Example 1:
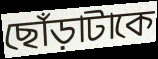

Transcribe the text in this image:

ছোঁড়াটাকে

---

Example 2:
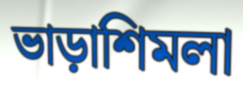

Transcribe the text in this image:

ভাড়াশিমলা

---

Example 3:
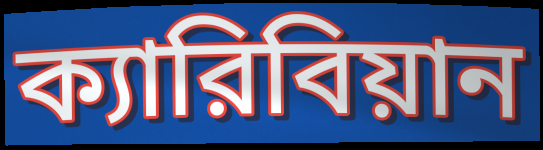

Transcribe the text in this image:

ক্যারিবিয়ান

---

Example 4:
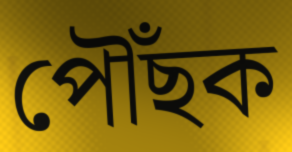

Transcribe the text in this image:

পৌঁছক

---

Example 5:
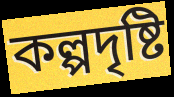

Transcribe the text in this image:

কল্পদৃষ্টি